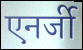
एनर्जी